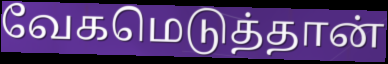
வேகமெடுத்தான்